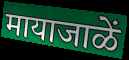
मायाजाळें